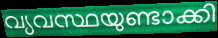
വ്യവസ്ഥയുണ്ടാക്കി